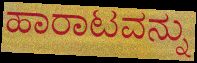
ಹಾರಾಟವನ್ನು